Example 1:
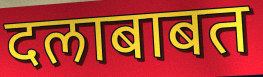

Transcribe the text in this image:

दलाबाबत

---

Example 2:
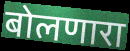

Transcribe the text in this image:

बोलणारा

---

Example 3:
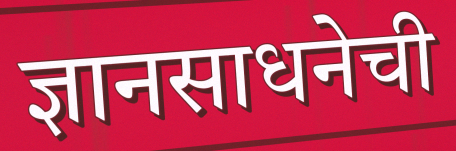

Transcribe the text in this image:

ज्ञानसाधनेची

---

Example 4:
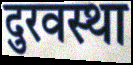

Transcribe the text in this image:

दुरवस्था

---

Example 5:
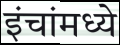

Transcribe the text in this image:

इंचांमध्ये